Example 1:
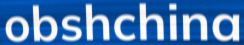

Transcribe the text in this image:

obshchina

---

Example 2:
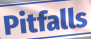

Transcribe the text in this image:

Pitfalls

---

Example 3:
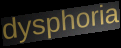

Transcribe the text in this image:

dysphoria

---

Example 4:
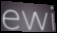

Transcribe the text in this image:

ewi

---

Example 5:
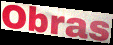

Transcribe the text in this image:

Obras